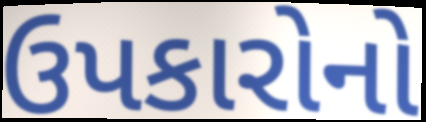
ઉપકારોનો